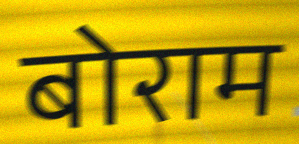
बोराम